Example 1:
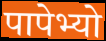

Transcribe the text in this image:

पापेभ्यो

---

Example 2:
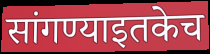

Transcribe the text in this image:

सांगण्याइतकेच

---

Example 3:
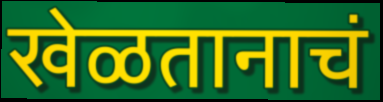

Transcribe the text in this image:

खेळतानाचं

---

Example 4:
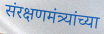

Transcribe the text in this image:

संरक्षणमंत्र्यांच्या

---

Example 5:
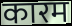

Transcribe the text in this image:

कारम